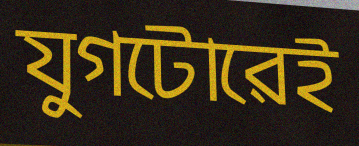
যুগটোৱেই